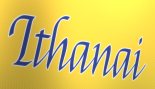
Ithanai